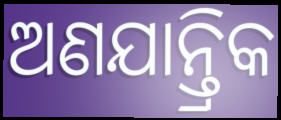
ଅଣଯାନ୍ତ୍ରିକ